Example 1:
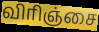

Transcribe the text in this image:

விரிஞ்சை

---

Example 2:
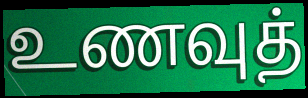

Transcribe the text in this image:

உணவுத்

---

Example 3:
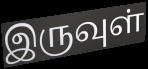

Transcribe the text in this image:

இருவுள்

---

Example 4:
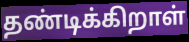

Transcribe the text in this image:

தண்டிக்கிறாள்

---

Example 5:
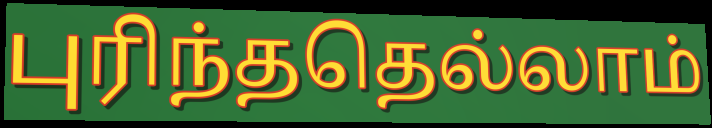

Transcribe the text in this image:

புரிந்ததெல்லாம்